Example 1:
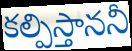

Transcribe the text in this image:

కల్పిస్తాననీ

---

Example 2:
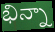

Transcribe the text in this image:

భిన్నా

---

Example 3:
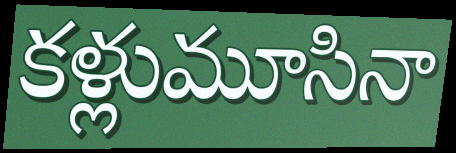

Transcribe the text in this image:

కళ్లుమూసినా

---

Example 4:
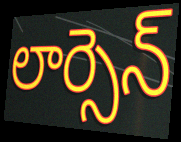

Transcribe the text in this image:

లార్సెన్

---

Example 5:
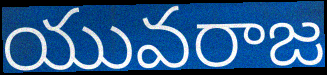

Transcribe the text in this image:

యువరాజ